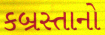
કબ્રસ્તાનો